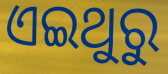
ଏଇଥୁରୁ